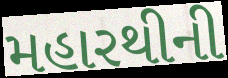
મહારથીની